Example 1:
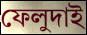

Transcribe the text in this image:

ফেলুদাই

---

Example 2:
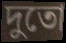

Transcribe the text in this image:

দুতো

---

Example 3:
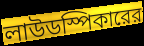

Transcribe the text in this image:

লাউডস্পিকারের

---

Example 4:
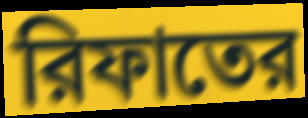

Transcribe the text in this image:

রিফাতের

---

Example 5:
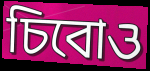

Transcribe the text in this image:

চিবোও